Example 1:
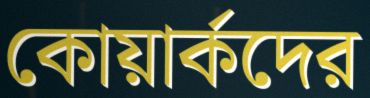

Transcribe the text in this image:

কোয়ার্কদের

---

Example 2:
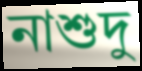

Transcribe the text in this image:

নাশুদু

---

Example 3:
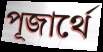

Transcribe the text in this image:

পূজার্থে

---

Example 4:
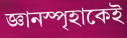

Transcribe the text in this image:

জ্ঞানস্পৃহাকেই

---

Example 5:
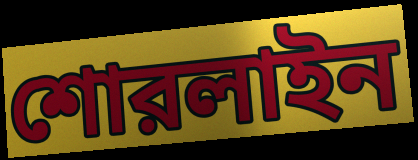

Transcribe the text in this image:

শোরলাইন